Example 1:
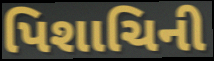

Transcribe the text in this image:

પિશાચિની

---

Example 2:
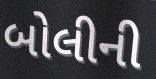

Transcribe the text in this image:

બોલીની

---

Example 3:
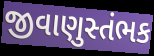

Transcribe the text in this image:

જીવાણુસ્તંભક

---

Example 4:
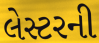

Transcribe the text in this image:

લેસ્ટરની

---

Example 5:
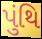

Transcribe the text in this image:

પુંથિ